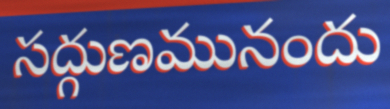
సద్గుణమునందు